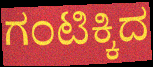
ಗಂಟಿಕ್ಕಿದ